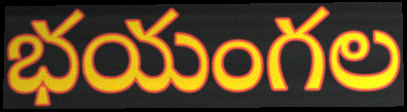
భయంగల